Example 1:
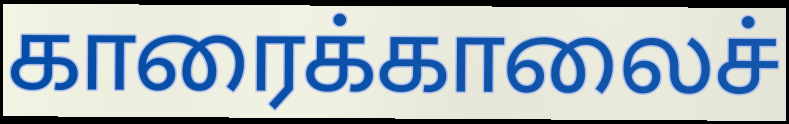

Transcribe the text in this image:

காரைக்காலைச்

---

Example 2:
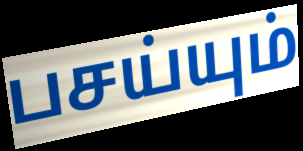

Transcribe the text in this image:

பசய்யும்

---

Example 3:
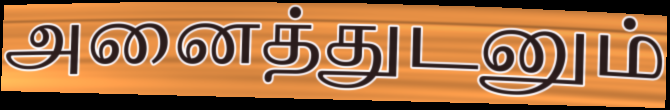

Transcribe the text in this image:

அனைத்துடனும்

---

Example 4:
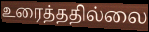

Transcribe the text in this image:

உரைத்ததில்லை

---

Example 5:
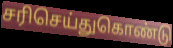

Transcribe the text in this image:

சரிசெய்துகொண்டு